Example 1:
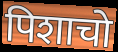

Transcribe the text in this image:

पिशाचो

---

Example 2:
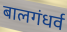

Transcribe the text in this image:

बालगंधर्व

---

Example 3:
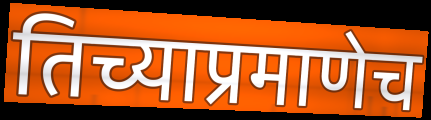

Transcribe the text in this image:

तिच्याप्रमाणेच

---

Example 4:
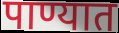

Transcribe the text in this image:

पाण्यात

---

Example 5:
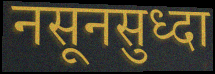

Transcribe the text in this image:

नसूनसुध्दा